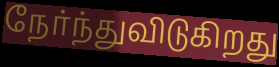
நேர்ந்துவிடுகிறது